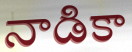
నాడికా